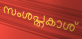
സംശപ്തകാശ്